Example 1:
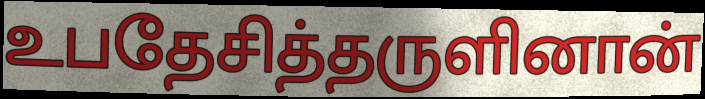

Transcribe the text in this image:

உபதேசித்தருளினான்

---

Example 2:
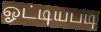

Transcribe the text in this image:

ஓட்டியபடி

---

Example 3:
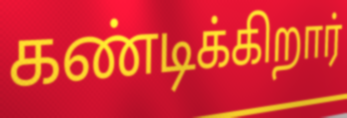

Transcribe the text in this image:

கண்டிக்கிறார்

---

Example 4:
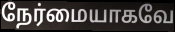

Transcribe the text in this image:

நேர்மையாகவே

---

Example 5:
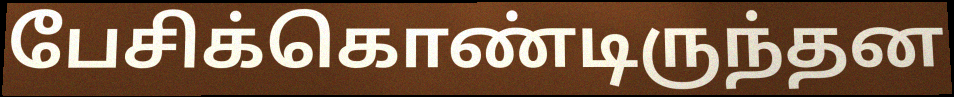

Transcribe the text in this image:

பேசிக்கொண்டிருந்தன